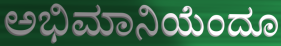
ಅಭಿಮಾನಿಯೆಂದೂ